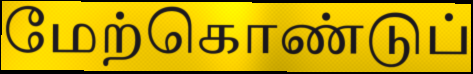
மேற்கொண்டுப்